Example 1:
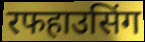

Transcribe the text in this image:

रफहाउसिंग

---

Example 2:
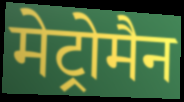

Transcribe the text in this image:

मेट्रोमैन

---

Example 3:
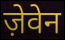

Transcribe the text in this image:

ज़ेवेन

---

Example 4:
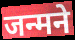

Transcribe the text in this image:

जन्मने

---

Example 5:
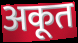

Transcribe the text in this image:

अकूत